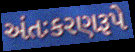
અંતઃકરણરૂપે